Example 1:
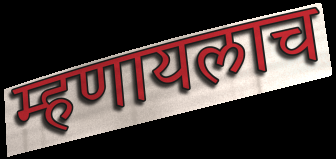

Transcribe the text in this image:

म्हणायलाच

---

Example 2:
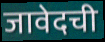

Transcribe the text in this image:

जावेदची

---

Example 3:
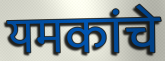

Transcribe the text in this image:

यमकांचे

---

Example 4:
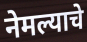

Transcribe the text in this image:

नेमल्याचे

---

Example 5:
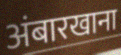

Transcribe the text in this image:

अंबारखाना